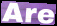
Are